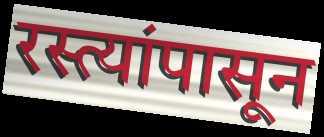
रस्त्यांपासून